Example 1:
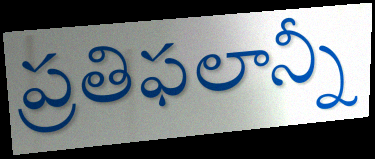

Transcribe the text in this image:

ప్రతిఫలాన్నీ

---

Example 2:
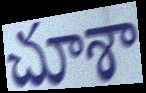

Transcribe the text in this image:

చూశా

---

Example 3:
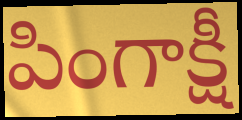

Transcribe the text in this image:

పింగాక్షీ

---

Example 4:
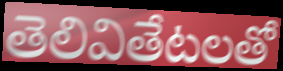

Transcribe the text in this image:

తెలివితేటలతో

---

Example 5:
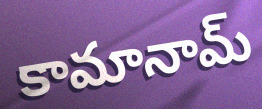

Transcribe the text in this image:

కామానామ్